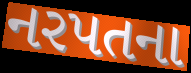
નરપતના